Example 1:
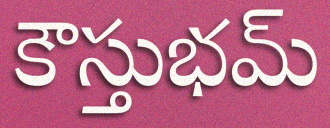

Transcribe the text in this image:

కౌస్తుభమ్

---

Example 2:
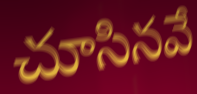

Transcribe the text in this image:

చూసినవే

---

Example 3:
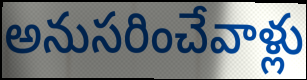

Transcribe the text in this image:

అనుసరించేవాళ్లు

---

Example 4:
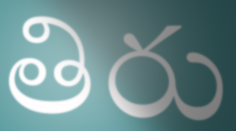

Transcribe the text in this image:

తిరు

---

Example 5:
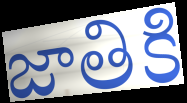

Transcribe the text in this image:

జాతికి